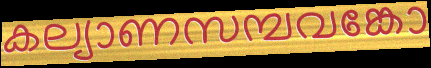
കല്യാണസമ്പവങ്കോ